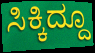
ಸಿಕ್ಕಿದ್ದೂ